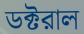
ডক্টরাল